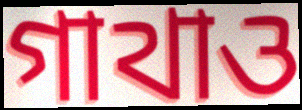
গাথাও